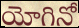
యోగినో